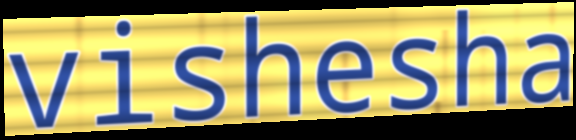
vishesha